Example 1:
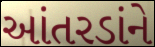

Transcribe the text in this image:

આંતરડાંને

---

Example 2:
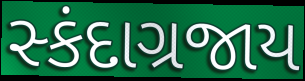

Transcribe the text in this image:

સ્કંદાગ્રજાય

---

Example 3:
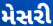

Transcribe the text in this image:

મેસરી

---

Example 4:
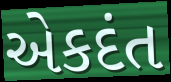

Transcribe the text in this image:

એકદંત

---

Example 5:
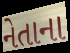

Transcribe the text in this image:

નેતાના